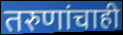
तरुणांचाही